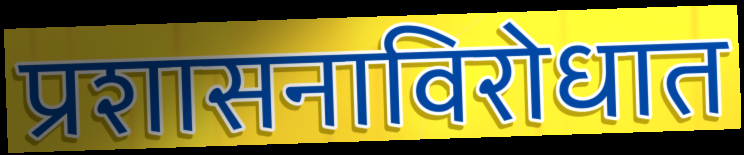
प्रशासनाविरोधात